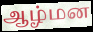
ஆழ்மன